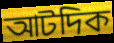
আটদিক